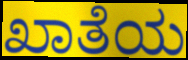
ಖಾತೆಯ